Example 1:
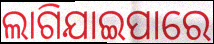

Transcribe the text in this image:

ଲାଗିଯାଇପାରେ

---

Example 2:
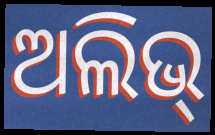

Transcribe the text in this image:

ଅଲିଭ୍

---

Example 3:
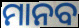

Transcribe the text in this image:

ମାନବ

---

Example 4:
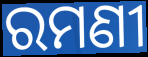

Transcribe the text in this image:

ରମଣୀ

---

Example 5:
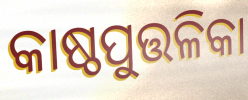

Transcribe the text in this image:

କାଷ୍ଠପୁତ୍ତଳିକା